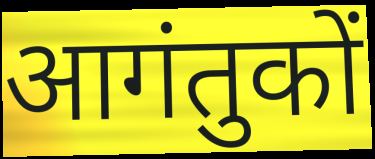
आगंतुकों